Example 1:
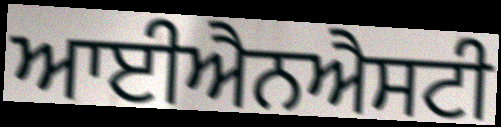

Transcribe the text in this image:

ਆਈਐਨਐਸਟੀ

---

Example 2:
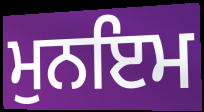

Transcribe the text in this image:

ਮੁਨਇਮ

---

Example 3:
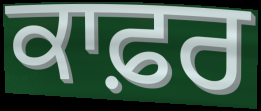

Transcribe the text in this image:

ਕਾਫ਼ਰ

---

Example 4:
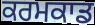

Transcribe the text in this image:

ਕਰਮਕਾਡ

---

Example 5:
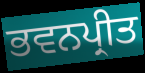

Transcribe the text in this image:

ਭਵਨਪ੍ਰੀਤ